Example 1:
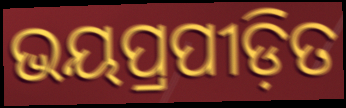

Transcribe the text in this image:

ଭୟପ୍ରପୀଡ଼ିତ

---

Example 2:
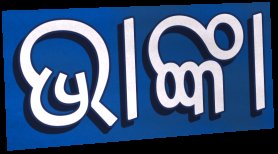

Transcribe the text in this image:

ଭାଙ୍କା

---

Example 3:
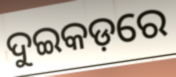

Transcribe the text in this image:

ଦୁଇକଡ଼ରେ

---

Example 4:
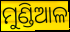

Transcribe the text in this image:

ମୁଣ୍ଡିଆଳ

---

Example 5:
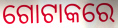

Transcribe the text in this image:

ଗୋଟାକରେ